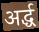
अर्द्ध